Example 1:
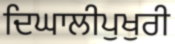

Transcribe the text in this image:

ਦਿਘਾਲੀਪੁਖੁਰੀ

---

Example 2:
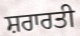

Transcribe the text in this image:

ਸ਼ਰਾਰਤੀ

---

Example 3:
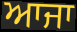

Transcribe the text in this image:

ਆਜਾ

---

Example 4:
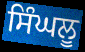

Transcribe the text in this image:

ਸਿੰਘਲੂ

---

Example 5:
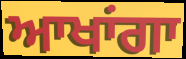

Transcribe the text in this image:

ਆਖਾਂਗਾ